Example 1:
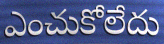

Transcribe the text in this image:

ఎంచుకోలేదు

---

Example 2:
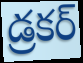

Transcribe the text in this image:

డ్రకర్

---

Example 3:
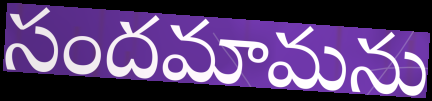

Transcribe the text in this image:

సందమామను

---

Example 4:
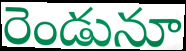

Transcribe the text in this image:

రెండునూ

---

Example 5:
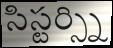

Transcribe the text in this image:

సిస్టర్స్ని